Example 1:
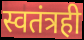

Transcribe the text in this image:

स्वतंत्रही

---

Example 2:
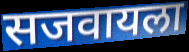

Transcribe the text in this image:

सजवायला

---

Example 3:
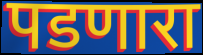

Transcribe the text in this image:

पडणारा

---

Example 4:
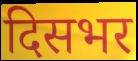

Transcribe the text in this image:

दिसभर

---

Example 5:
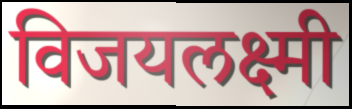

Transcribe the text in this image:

विजयलक्ष्मी